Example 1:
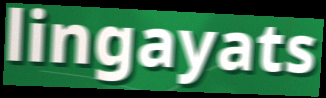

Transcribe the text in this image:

lingayats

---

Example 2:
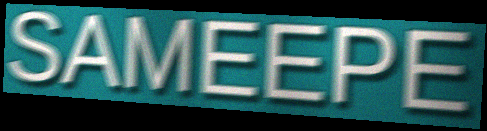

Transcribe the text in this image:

SAMEEPE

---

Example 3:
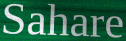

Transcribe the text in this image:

Sahare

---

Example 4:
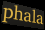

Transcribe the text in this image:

phala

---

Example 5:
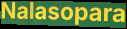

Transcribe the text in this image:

Nalasopara